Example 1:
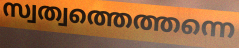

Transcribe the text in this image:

സ്വത്വത്തെത്തന്നെ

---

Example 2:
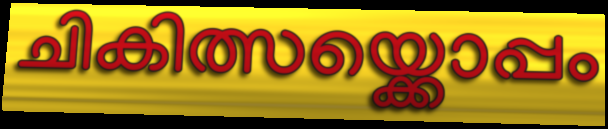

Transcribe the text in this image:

ചികിത്സയ്ക്കൊപ്പം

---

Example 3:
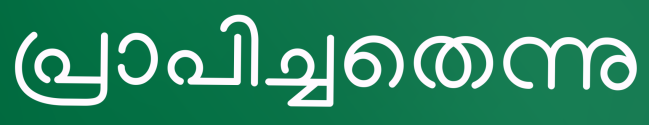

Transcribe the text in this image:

പ്രാപിച്ചതെന്നു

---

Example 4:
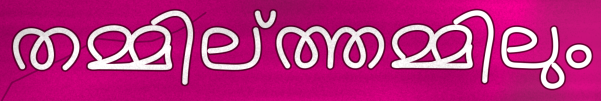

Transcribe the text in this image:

തമ്മില്ത്തമ്മിലും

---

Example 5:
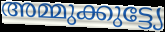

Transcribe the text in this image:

അമ്മുക്കുട്ട്യേ